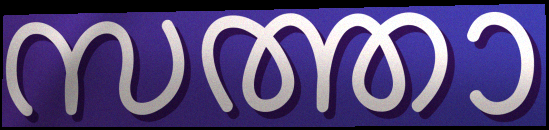
സത്താ